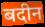
बदीन